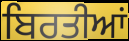
ਬਿਰਤੀਆਂ